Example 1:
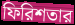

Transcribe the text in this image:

ফিরিশতার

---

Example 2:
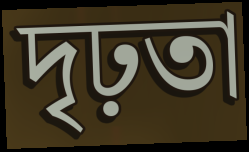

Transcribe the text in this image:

দৃঢ়তা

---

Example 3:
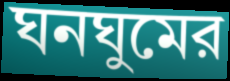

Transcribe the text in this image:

ঘনঘুমের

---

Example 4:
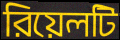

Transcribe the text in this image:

রিয়েলটি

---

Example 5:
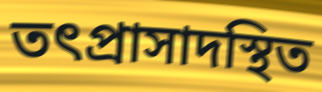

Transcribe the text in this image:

তৎপ্রাসাদস্থিত